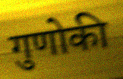
गुणोकी